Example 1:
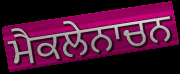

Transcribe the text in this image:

ਮੈਕਲੇਨਾਚਨ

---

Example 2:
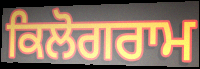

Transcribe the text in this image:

ਕਿਲੋਗਰਾਮ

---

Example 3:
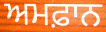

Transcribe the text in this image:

ਅਮਫ਼ਾਨ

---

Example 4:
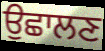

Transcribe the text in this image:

ਉਛਾਲਣ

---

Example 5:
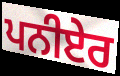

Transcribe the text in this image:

ਪਨੀਏਰ